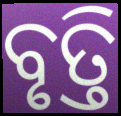
ବୃତ୍ତି